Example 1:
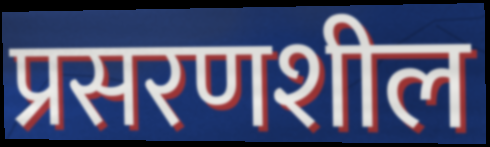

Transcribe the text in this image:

प्रसरणशील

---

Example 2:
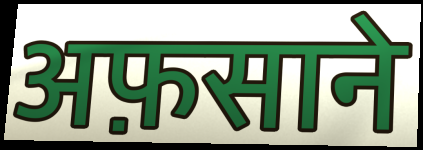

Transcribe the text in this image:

अफ़साने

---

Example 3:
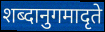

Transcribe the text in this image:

शब्दानुगमादृते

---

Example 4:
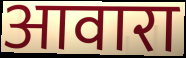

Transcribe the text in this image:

आवारा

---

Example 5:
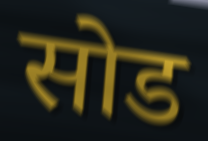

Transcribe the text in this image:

सोड